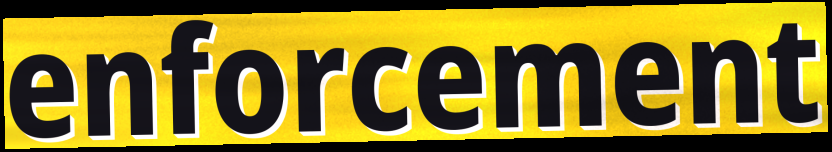
enforcement